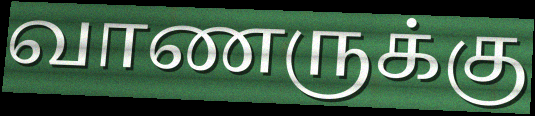
வாணருக்கு